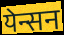
येन्सन